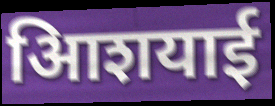
आिशयाई